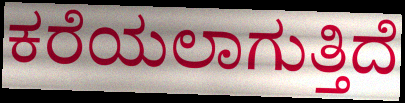
ಕರೆಯಲಾಗುತ್ತಿದೆ